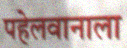
पहेलवानाला